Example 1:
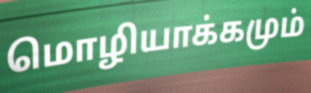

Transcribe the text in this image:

மொழியாக்கமும்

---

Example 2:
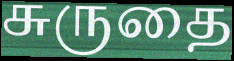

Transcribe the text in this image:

சுருதை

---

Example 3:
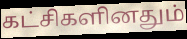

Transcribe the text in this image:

கட்சிகளினதும்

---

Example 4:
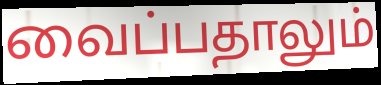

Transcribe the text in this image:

வைப்பதாலும்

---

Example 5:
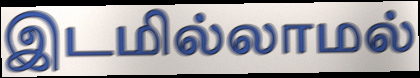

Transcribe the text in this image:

இடமில்லாமல்